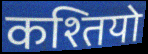
कश्तियो